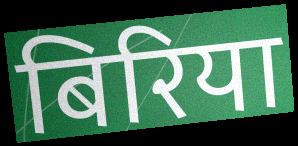
बिरिया